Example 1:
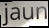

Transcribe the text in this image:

jaun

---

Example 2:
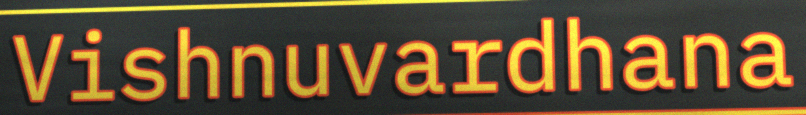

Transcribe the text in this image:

Vishnuvardhana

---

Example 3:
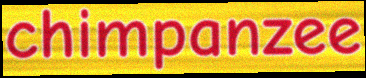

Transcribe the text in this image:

chimpanzee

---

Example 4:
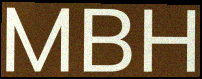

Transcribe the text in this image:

MBH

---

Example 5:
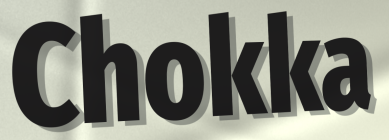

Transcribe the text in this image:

Chokka